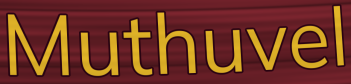
Muthuvel